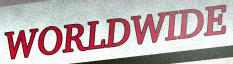
WORLDWIDE